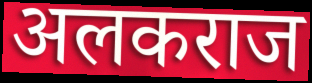
अलकराज